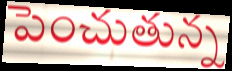
పెంచుతున్న